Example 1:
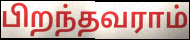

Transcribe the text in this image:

பிறந்தவராம்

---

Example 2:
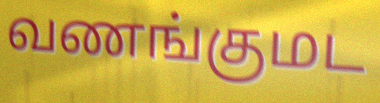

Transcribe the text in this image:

வணங்குமட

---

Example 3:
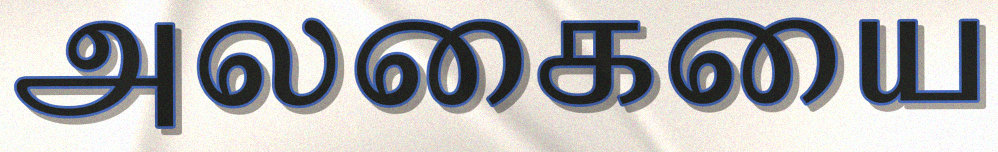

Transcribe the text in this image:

அலகையை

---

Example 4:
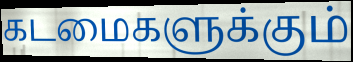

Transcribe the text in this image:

கடமைகளுக்கும்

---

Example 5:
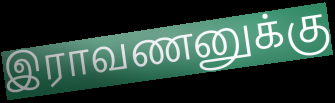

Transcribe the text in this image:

இராவணனுக்கு